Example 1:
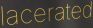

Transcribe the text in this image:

lacerated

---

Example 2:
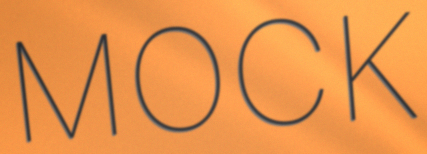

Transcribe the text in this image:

MOCK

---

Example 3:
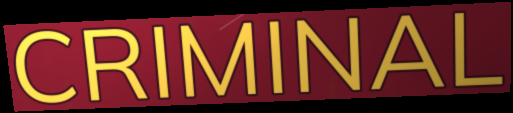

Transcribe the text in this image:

CRIMINAL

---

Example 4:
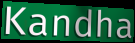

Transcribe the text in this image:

Kandha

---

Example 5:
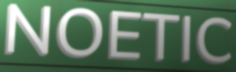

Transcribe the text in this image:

NOETIC